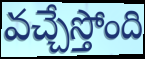
వచ్చేస్తోంది